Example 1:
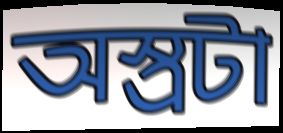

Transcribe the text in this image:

অস্ত্রটা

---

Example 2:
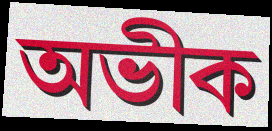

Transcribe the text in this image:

অভীক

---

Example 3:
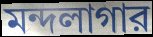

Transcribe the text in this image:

মন্দলাগার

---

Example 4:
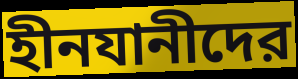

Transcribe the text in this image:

হীনযানীদের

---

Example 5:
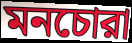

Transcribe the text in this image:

মনচোরা